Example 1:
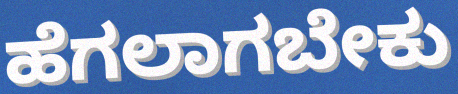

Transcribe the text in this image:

ಹೆಗಲಾಗಬೇಕು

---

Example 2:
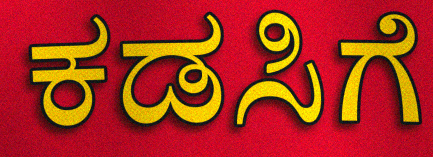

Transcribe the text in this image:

ಕಡಸಿಗೆ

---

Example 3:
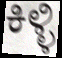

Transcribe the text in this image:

ಕಿಳ್ಳಿ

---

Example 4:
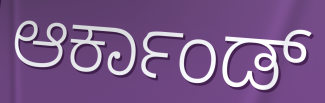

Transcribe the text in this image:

ಆರ್ಕಾಂಡ್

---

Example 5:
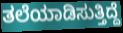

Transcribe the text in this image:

ತಲೆಯಾಡಿಸುತ್ತಿದ್ದೆ